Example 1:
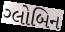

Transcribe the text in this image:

ગ્લોબિન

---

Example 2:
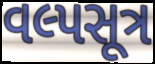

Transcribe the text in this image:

વલ્પસૂત્ર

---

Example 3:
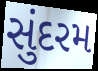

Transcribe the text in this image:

સુંદરમ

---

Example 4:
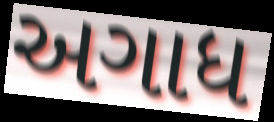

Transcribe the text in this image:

અગાધ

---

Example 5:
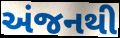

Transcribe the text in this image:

અંજનથી